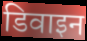
डिवाइन